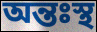
অন্তঃস্থ